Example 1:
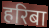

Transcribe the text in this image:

हरिबा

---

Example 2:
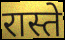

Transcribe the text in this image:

रास्ते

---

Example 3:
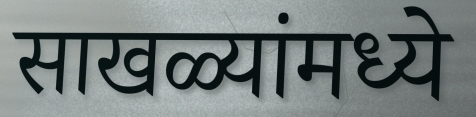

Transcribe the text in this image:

साखळ्यांमध्ये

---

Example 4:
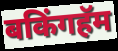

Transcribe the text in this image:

बकिंगहॅम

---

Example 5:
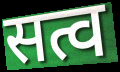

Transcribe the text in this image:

सत्व